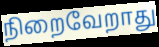
நிறைவேறாது